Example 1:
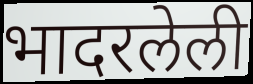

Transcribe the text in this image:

भादरलेली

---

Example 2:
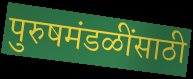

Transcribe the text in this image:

पुरुषमंडळींसाठी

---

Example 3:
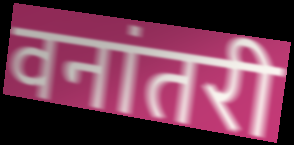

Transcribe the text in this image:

वनांतरी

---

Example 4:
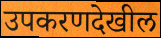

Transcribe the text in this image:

उपकरणदेखील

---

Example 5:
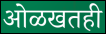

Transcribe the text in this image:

ओळखतही